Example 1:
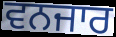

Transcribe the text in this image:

ਵਨਜਾਰ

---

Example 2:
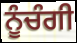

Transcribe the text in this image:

ਨੂੰਚੰਗੀ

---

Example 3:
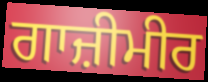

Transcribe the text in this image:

ਗਾਜ਼ੀਮੀਰ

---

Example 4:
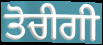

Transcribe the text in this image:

ਤੋਚੀਗੀ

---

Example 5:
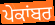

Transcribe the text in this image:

ਪੇਕਾਂਬਰ